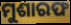
ମୁଶାରଫ